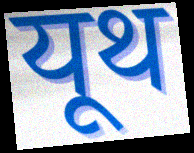
यूथ